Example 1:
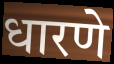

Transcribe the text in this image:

धारणे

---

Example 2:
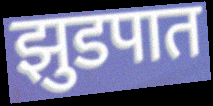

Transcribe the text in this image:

झुडपात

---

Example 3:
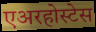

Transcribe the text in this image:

एअरहोस्टेस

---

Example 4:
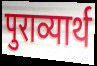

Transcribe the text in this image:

पुराव्यार्थ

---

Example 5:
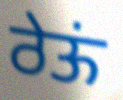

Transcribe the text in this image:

ठेऊं